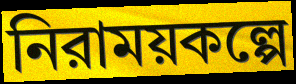
নিরাময়কল্পে